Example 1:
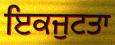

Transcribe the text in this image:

ਇਕਜੁਟਤਾ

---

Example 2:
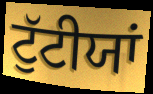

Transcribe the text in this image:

ਟੁੱਟੀਯਾਂ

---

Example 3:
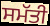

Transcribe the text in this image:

ਸਮੱਤੀ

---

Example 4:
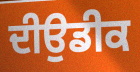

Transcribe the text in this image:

ਦੀਉਡੀਕ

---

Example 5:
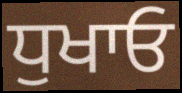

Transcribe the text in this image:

ਧੁਖਾਓ